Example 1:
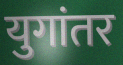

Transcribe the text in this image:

युगांतर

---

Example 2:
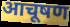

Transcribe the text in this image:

आचूषण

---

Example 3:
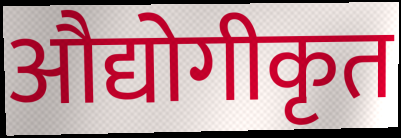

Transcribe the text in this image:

औद्योगीकृत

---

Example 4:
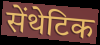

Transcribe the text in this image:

सेंथेटिक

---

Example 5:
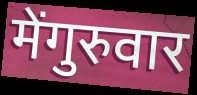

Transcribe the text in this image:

मेंगुरुवार